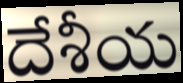
దేశీయ